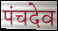
पंचदेव